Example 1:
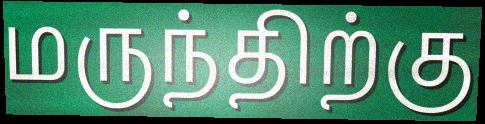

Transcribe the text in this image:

மருந்திற்கு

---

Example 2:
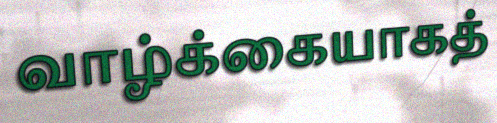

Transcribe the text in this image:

வாழ்க்கையாகத்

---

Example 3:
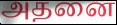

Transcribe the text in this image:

அதனை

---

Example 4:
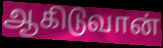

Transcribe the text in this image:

ஆகிடுவான்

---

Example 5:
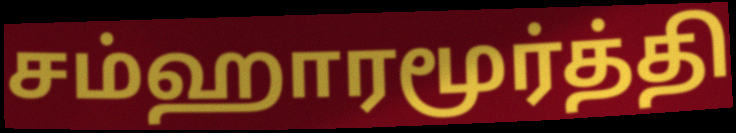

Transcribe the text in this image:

சம்ஹாரமூர்த்தி